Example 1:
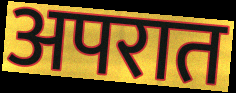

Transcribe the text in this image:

अपरात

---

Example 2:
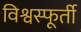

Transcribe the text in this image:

विश्वस्फूर्ती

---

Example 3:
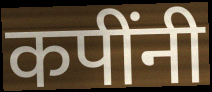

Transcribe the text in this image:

कपींनी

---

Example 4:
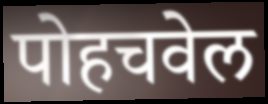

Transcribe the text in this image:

पोहचवेल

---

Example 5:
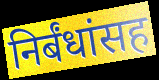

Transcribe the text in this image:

निर्बंधांसह